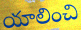
యాలించి